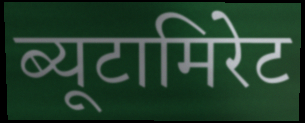
ब्यूटामिरेट